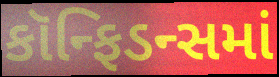
કૉન્ફિડન્સમાં